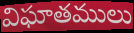
విఘాతములు